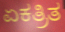
ಏಕತ್ರಿತ